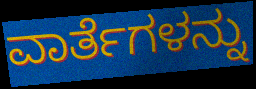
ವಾರ್ತೆಗಳನ್ನು